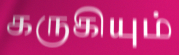
கருகியும்